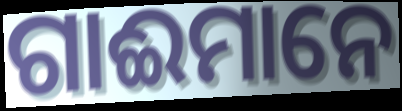
ଗାଈମାନେ